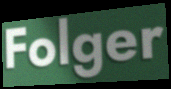
Folger